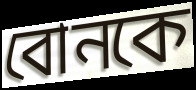
বোনকে